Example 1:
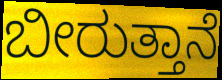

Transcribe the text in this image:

ಬೀರುತ್ತಾನೆ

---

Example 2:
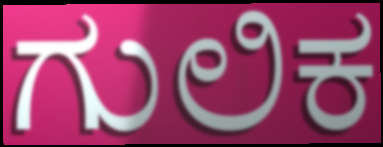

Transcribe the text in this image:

ಗುಲಿಕ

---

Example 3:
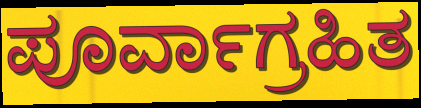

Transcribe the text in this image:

ಪೂರ್ವಾಗ್ರಹಿತ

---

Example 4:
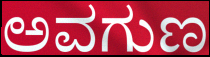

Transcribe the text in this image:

ಅವಗುಣ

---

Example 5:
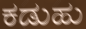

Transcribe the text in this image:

ಕಡುಹು